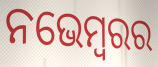
ନଭେମ୍ବରର